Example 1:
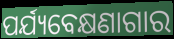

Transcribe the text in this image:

ପର୍ଯ୍ୟବେକ୍ଷଣାଗାର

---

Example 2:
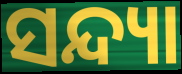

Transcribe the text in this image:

ସନ୍ଦ୍ୟା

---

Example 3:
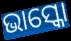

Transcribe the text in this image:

ଭାସ୍କୋ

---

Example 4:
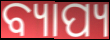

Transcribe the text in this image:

ବ୍ଯାପ୍ୟ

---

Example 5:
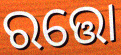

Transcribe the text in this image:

ରତ୍ତୋ